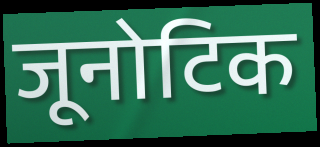
जूनोटिक